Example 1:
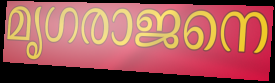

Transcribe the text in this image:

മൃഗരാജനെ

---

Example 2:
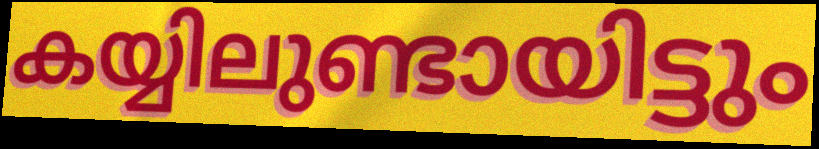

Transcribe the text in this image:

കയ്യിലുണ്ടായിട്ടും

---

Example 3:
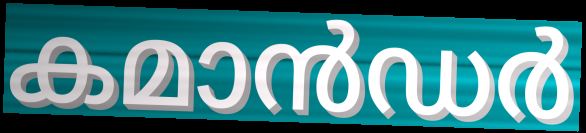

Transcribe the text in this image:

കമാൻഡർ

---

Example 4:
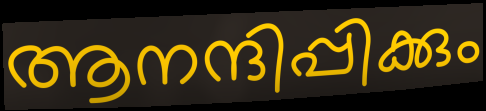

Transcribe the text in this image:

ആനന്ദിപ്പിക്കും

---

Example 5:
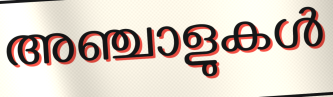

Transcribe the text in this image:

അഞ്ചാളുകൾ